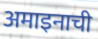
अमाइनाची